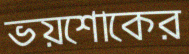
ভয়শোকের